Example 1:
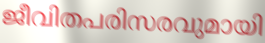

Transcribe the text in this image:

ജീവിതപരിസരവുമായി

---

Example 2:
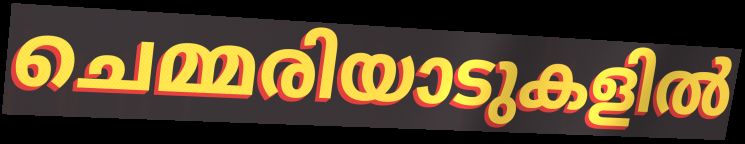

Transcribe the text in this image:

ചെമ്മരിയാടുകളിൽ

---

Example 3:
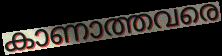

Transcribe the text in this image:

കാണാത്തവരെ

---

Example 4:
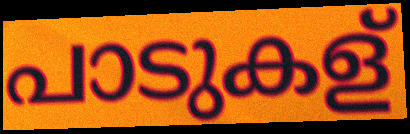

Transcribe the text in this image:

പാടുകള്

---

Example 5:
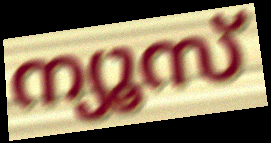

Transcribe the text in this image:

ന്യൂസ്